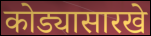
कोड्यासारखे